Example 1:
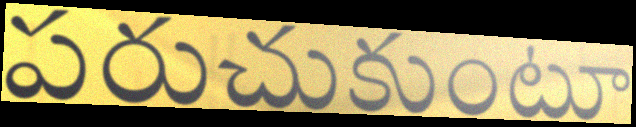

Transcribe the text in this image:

పరుచుకుంటూ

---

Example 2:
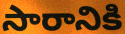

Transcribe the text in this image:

సారానికి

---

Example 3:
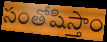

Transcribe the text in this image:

సంతోషిస్తాం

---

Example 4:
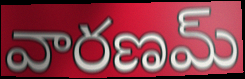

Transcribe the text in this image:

వారణమ్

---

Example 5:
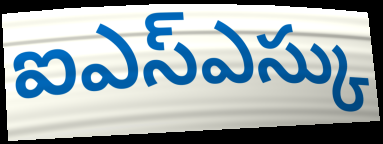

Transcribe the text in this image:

ఐఎస్ఎస్కు